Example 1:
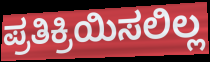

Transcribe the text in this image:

ಪ್ರತಿಕ್ರಿಯಿಸಲಿಲ್ಲ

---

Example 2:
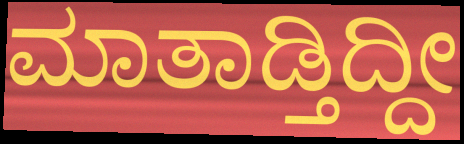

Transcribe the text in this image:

ಮಾತಾಡ್ತಿದ್ದೀ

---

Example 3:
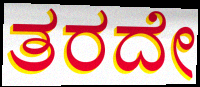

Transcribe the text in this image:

ತರದೇ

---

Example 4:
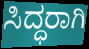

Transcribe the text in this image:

ಸಿದ್ಧರಾಗಿ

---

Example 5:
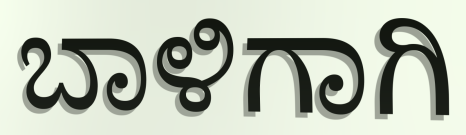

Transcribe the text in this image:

ಬಾಳಿಗಾಗಿ